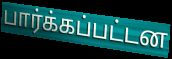
பார்க்கப்பட்டன